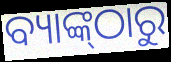
ବ୍ୟାଙ୍କ୍‌ଠାରୁ